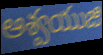
ఆశ్వయుజి